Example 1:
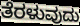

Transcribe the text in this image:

ತೆರಳುವುದು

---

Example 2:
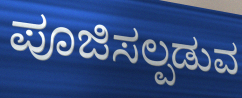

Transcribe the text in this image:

ಪೂಜಿಸಲ್ಪಡುವ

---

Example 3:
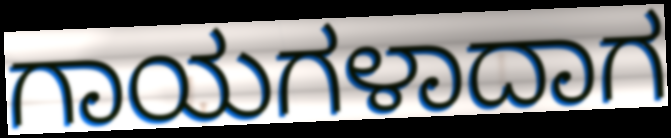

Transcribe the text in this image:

ಗಾಯಗಳಾದಾಗ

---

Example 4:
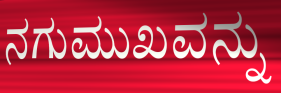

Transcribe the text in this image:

ನಗುಮುಖವನ್ನು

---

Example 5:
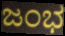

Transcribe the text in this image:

ಜಂಭ